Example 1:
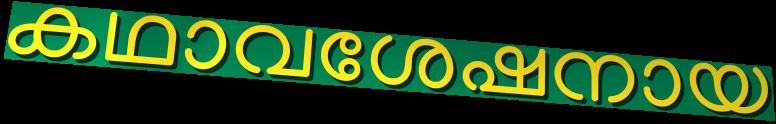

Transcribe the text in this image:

കഥാവശേഷനായ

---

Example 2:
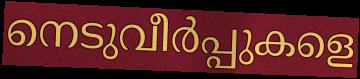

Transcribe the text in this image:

നെടുവീർപ്പുകളെ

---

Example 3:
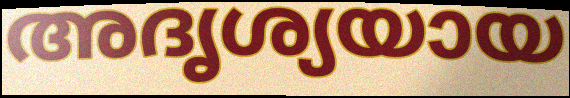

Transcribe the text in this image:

അദൃശ്യയായ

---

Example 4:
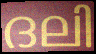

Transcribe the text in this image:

ദലി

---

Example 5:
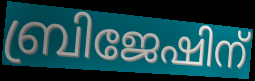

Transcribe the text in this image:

ബ്രിജേഷിന്